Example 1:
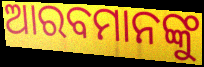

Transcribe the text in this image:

ଆରବମାନଙ୍କୁ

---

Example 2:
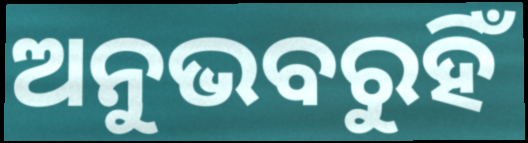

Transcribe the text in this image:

ଅନୁଭବରୁହିଁ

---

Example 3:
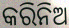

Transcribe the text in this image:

କରିନିଅ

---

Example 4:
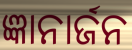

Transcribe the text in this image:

ଜ୍ଞାନାର୍ଜନ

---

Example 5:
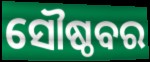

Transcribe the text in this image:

ସୌଷ୍ଠବର